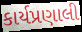
કાર્યપ્રણાલી